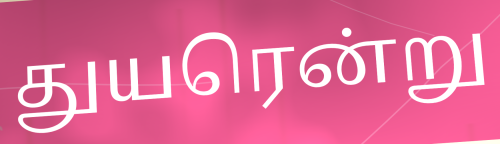
துயரென்று